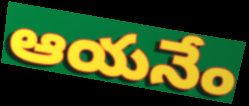
ఆయనేం